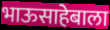
भाऊसाहेबाला